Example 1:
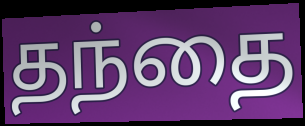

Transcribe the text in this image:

தந்தை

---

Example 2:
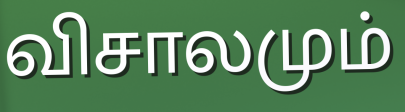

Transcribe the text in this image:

விசாலமும்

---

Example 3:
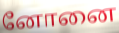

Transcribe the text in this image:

னோனை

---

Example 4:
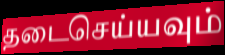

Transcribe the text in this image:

தடைசெய்யவும்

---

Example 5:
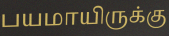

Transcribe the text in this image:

பயமாயிருக்கு